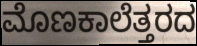
ಮೊಣಕಾಲೆತ್ತರದ